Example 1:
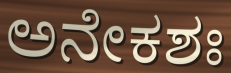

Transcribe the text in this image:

ಅನೇಕಶಃ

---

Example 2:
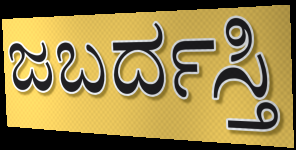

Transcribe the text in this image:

ಜಬರ್ದಸ್ತಿ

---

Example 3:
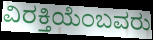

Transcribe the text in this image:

ವಿರಕ್ತಿಯೆಂಬವರು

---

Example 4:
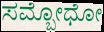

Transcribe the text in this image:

ಸಮ್ಬೋಧೋ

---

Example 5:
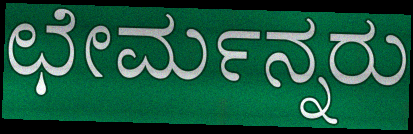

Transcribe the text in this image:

ಛೇರ್ಮನ್ನರು